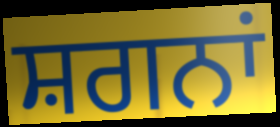
ਸ਼ਗਨਾਂ